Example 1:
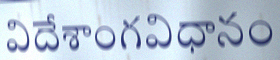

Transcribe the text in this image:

విదేశాంగవిధానం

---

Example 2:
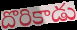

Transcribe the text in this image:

దొరికాడు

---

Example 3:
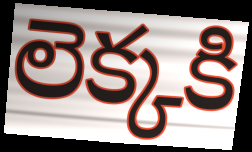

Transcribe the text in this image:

లెక్కకి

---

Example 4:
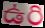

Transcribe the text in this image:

ఉరి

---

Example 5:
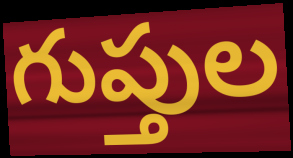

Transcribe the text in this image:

గుప్తుల